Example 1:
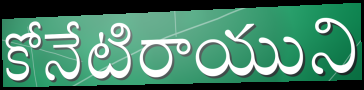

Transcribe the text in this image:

కోనేటిరాయుని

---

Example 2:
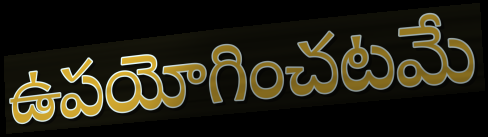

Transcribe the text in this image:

ఉపయోగించటమే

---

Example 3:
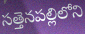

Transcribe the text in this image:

సత్తెనపల్లిలోని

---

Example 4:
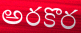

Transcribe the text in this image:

అరకొర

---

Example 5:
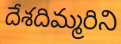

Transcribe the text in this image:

దేశదిమ్మరిని